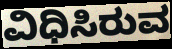
ವಿಧಿಸಿರುವ